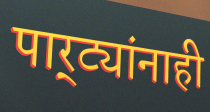
पार्ट्यांनाही